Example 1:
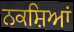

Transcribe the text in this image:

ਨਕਸ਼ਿਆਂ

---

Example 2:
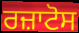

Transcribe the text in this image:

ਰਜ਼ਾਟੋਸ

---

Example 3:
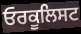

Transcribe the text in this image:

ਓਰਕੂਲਿਸਟ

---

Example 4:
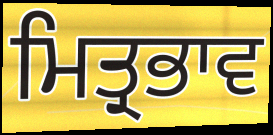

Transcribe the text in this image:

ਮਿਤ੍ਰਭਾਵ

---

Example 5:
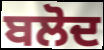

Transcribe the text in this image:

ਬਲੋਦ